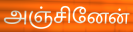
அஞ்சினேன்